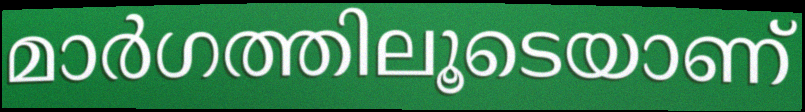
മാർഗത്തിലൂടെയാണ്